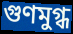
গুণমুগ্ধ